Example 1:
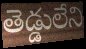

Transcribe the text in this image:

తెడ్డులేని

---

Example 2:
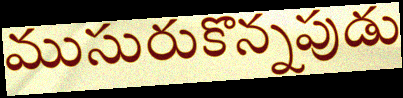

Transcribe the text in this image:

ముసురుకొన్నపుడు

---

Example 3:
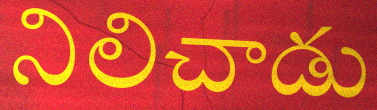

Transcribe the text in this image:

నిలిచాడు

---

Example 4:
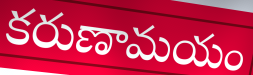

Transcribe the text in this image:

కరుణామయం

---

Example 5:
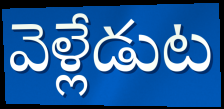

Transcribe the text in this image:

వెళ్లేడుట